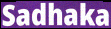
Sadhaka